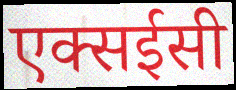
एक्सईसी